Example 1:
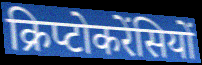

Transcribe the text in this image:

क्रिप्टोकरेंसियों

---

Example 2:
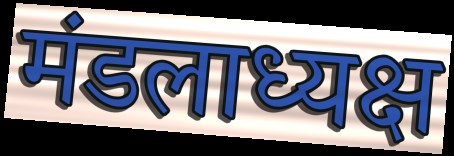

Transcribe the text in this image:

मंडलाध्यक्ष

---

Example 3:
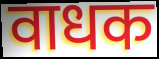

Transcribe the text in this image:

वाधक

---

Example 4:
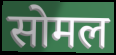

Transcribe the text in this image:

सोमल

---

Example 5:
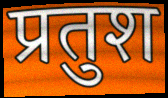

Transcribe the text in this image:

प्रतुश